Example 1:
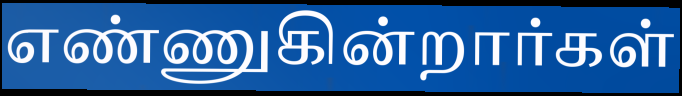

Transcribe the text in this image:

எண்ணுகின்றார்கள்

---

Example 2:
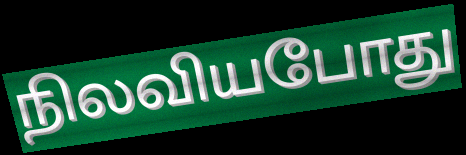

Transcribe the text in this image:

நிலவியபோது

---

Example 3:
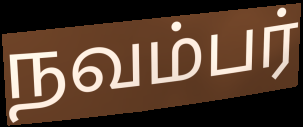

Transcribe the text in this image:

நவம்பர்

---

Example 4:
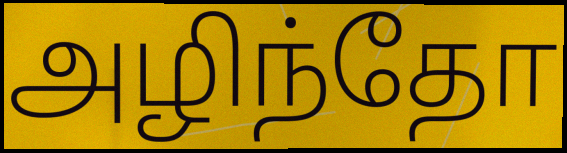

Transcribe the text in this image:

அழிந்தோ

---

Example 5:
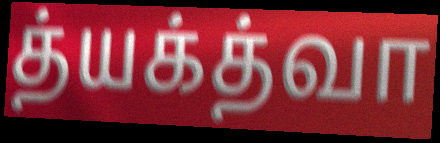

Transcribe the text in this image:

த்யக்த்வா